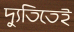
দ্যুতিতেই